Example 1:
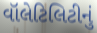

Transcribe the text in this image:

વૉલેટિલિટીનું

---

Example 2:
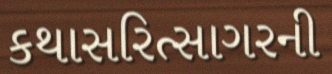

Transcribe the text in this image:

કથાસરિત્સાગરની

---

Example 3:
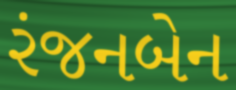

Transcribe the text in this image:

રંજનબેન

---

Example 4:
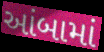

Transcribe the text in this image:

આંબામાં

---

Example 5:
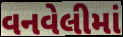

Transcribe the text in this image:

વનવેલીમાં